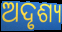
ଅଦୃଶ୍ୟ